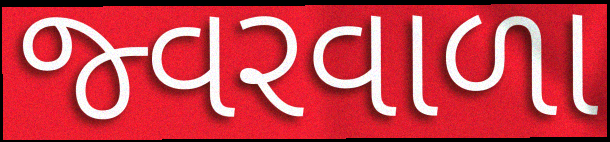
જ્વરવાળા